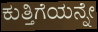
ಕುತ್ತಿಗೆಯನ್ನೇ